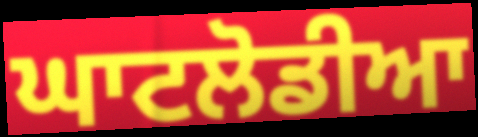
ਘਾਟਲੋਡੀਆ